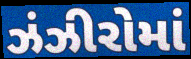
ઝંઝીરોમાં